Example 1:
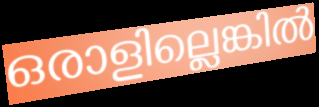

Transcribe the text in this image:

ഒരാളില്ലെങ്കിൽ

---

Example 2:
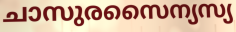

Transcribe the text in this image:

ചാസുരസൈന്യസ്യ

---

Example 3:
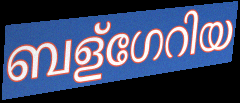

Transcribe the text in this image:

ബള്ഗേറിയ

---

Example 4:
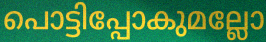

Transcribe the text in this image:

പൊട്ടിപ്പോകുമല്ലോ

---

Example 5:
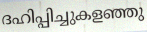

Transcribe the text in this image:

ദഹിപ്പിച്ചുകളഞ്ഞു